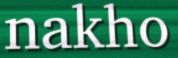
nakho